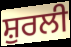
ਸ਼ੁਰਲੀ